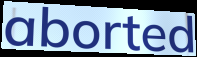
aborted